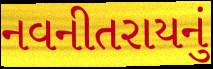
નવનીતરાયનું